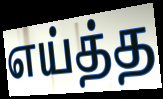
எய்த்த